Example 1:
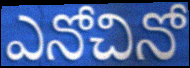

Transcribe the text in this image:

ఎనోచినో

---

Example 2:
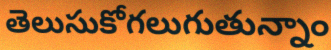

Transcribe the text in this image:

తెలుసుకోగలుగుతున్నాం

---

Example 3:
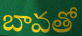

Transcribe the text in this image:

బావతో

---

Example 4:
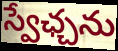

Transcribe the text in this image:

స్వేఛ్చను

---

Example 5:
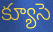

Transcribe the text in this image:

క్యూసె